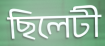
ছিলেটী